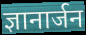
ज्ञानार्जन